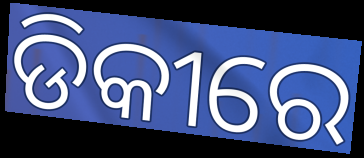
ଡିକୀରେ